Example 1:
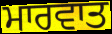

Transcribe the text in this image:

ਮਾਰਵਾਤ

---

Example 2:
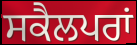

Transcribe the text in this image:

ਸਕੈਲਪਰਾਂ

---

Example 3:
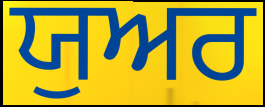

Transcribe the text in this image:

ਯੁਅਰ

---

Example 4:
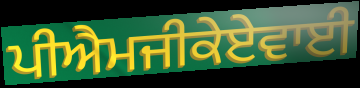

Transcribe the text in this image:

ਪੀਐਮਜੀਕੇਏਵਾਈ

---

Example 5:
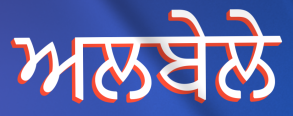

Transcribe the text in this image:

ਅਲਬੇਲੇ